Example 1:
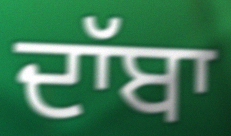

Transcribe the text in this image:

ਦਾੱਬਾ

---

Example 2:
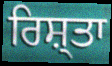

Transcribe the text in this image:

ਰਿਸ਼੍ਤਾ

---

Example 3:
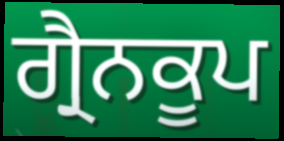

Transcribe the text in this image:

ਗ੍ਰੈਨਕੂਪ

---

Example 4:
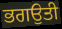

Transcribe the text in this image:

ਭਗਉਤੀ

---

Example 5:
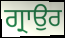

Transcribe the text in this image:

ਗ੍ਰਾਉਰ